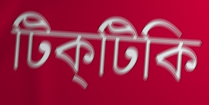
টিক্‌টিকি